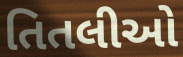
તિતલીઓ